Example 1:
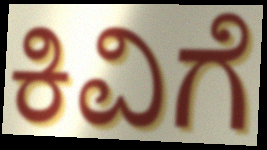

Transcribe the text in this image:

ಕಿವಿಗೆ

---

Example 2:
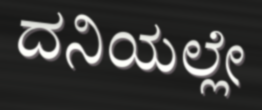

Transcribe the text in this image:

ದನಿಯಲ್ಲೇ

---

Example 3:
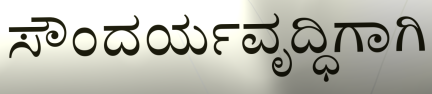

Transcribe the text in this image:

ಸೌಂದರ್ಯವೃದ್ಧಿಗಾಗಿ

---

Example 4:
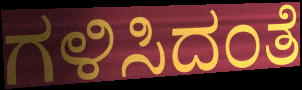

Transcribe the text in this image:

ಗಳಿಸಿದಂತೆ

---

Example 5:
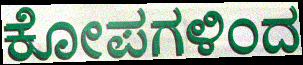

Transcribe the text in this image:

ಕೋಪಗಳಿಂದ